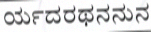
ರ್ಯದರಥನನುನ